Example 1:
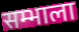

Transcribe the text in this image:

सम्भाला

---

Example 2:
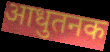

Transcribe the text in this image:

आधुतनक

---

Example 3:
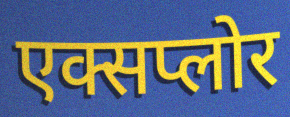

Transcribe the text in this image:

एक्सप्लोर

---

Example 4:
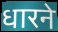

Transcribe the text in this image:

धारने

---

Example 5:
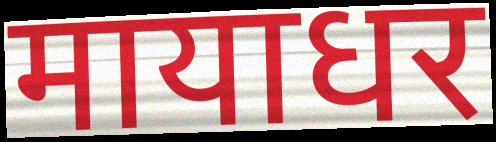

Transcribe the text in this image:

मायाधर